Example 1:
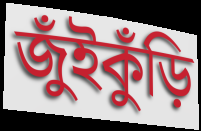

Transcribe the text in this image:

জুঁইকুঁড়ি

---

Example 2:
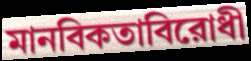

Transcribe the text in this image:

মানবিকতাবিরোধী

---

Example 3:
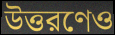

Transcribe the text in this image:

উত্তরণেও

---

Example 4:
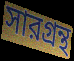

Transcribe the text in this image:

সারগ্রন্থ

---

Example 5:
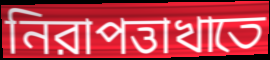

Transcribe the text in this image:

নিরাপত্তাখাতে